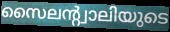
സൈലന്റ്വാലിയുടെ